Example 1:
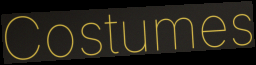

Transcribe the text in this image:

Costumes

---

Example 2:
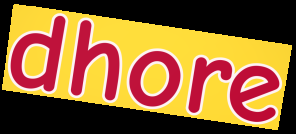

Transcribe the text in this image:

dhore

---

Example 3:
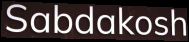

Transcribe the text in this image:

Sabdakosh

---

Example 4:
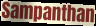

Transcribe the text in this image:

Sampanthan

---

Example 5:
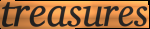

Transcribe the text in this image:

treasures